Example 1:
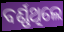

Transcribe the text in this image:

ବର୍ଣ୍ଣଥିଲେ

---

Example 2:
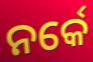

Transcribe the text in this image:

ନର୍କେ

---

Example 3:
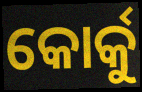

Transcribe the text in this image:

କୋର୍କୁ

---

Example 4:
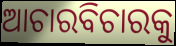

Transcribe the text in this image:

ଆଚାରବିଚାରକୁ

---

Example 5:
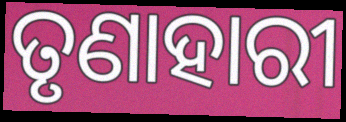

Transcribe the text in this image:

ତୃଣାହାରୀ